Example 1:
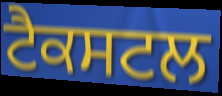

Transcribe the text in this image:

ਟੈਕਸਟਲ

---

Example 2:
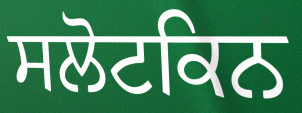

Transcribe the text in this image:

ਸਲੋਟਕਿਨ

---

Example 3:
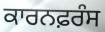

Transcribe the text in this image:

ਕਾਰਨਫ਼ਰੰਸ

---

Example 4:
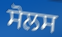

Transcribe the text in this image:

ਸੋਲਸ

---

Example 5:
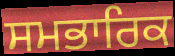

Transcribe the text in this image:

ਸਮਭਾਰਿਕ